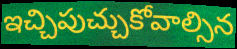
ఇచ్చిపుచ్చుకోవాల్సిన